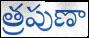
త్రపుణా